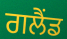
ਗਲੈਂਡ